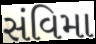
સંવિમા